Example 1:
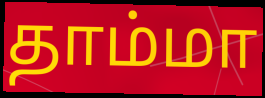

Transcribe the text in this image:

தாம்மா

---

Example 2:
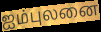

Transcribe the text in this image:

ஐம்புலனை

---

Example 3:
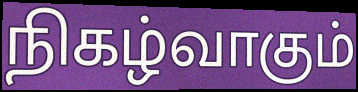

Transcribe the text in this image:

நிகழ்வாகும்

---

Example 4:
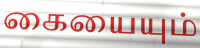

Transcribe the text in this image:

கையையும்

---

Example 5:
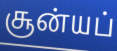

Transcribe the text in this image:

சூன்யப்